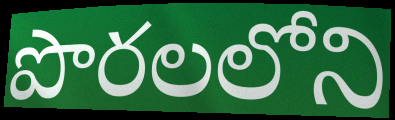
పొరలలోని